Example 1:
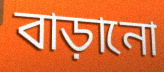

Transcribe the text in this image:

বাড়ানো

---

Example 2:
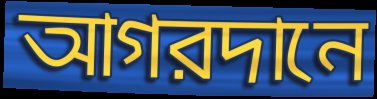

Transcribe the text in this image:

আগরদানে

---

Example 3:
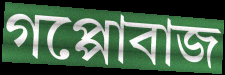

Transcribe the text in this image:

গপ্পোবাজ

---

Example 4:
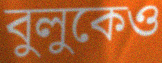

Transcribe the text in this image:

বুলুকেও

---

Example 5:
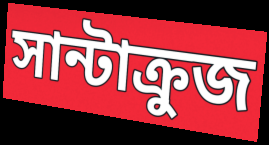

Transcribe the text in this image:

সান্টাক্রুজ